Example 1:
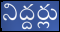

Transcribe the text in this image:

నిద్దర్లు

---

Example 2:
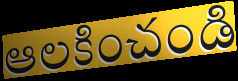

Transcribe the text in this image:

ఆలకించండి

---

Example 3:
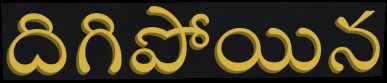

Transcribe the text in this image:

దిగిపోయిన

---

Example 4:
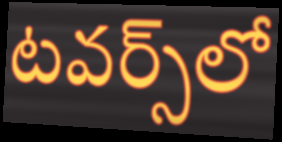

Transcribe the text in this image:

టవర్స్‌లో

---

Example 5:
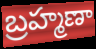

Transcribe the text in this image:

బ్రహ్మణా